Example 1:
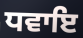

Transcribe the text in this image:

ਧਵਾਇ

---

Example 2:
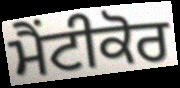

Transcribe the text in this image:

ਮੈਂਟੀਕੋਰ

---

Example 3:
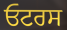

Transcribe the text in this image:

ਓਟਰਸ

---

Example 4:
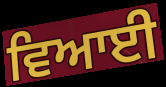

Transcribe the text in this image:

ਵਿਆਈ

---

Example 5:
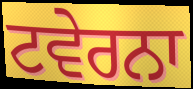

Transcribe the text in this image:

ਟਵੇਰਨਾ